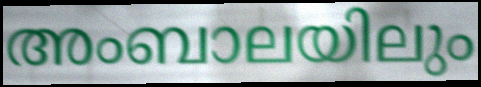
അംബാലയിലും